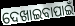
ଦେଖାଇବାପାଇଁ